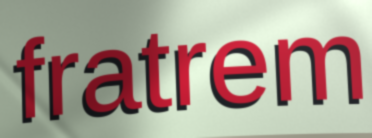
fratrem